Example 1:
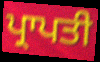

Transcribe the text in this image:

ਪ੍ਰਾਪਤੀ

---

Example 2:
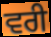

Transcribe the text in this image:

ਵਰੀ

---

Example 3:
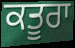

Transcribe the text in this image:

ਕਤੂਰਾ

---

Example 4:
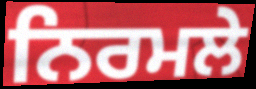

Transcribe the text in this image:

ਨਿਰਮਲੇ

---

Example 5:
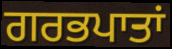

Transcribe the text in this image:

ਗਰਭਪਾਤਾਂ